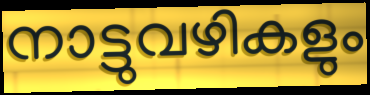
നാട്ടുവഴികളും